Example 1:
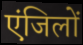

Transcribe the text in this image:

एंजिलों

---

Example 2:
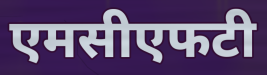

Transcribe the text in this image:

एमसीएफटी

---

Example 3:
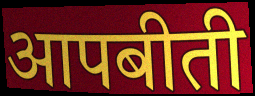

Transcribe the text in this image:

आपबीती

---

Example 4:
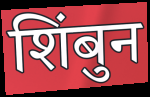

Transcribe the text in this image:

शिंबुन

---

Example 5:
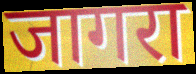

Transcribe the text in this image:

जागरा